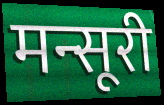
मन्सूरी